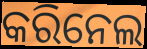
କରିନେଲ